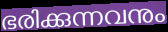
ഭരിക്കുന്നവനും